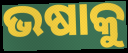
ଭଷାକୁ